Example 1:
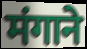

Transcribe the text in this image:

मंगाने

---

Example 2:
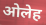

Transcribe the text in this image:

ओलेह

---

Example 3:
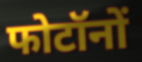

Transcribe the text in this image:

फोटॉनों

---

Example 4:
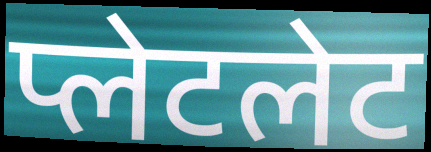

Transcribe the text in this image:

प्लेटलेट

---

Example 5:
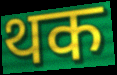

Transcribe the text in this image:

थक